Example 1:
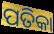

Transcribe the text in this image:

ପତିକା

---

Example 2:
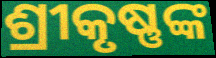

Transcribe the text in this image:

ଶ୍ରୀକୃଷ୍ଣଙ୍କ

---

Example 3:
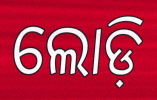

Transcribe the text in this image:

ଲୋଡ଼ି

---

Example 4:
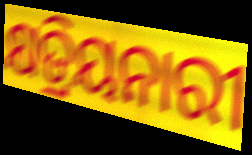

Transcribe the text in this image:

କ୍ଷତ୍ରିୟନାରୀ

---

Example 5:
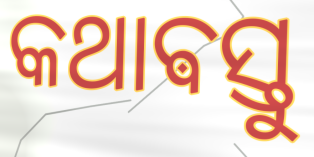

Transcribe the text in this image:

କଥାଵସ୍ତୁ